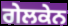
ਗੇਲਕੇਨ